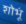
शोभूं